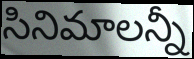
సినిమాలన్నీ